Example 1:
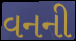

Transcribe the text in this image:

વનની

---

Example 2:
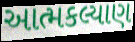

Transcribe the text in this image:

આત્મકલ્યાણ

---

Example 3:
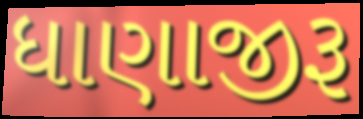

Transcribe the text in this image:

ધાણાજીરૂ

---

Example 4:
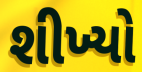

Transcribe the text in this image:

શીખ્યો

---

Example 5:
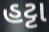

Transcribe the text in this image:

હટ્ટા